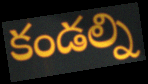
కండల్ని